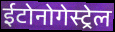
ईटोनोगेस्ट्रेल